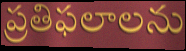
ప్రతిఫలాలను